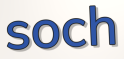
soch